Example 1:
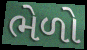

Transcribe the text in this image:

ભેળો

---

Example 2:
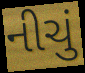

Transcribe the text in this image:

નીચું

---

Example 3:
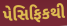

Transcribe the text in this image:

પેસિફિકથી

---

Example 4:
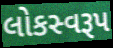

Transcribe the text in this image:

લોકસ્વરૂપ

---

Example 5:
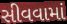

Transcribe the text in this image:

સીવવામાં